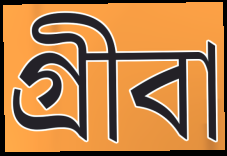
গ্রীবা